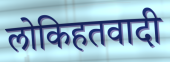
लोकिहतवादी